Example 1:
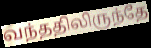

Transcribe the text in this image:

வந்ததிலிருந்தே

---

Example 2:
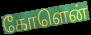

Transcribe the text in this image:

கோளென்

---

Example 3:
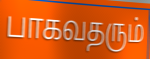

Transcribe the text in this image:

பாகவதரும்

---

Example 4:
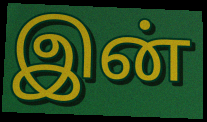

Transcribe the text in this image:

இன்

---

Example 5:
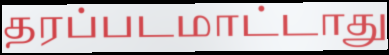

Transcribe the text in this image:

தரப்படமாட்டாது